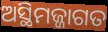
ଅସ୍ଥିମଜ୍ଜାଗତ